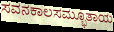
ಸವನಕಾಲಸಮ್ಭೂತಾಯ